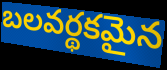
బలవర్థకమైన